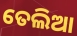
ତେଲିଆ